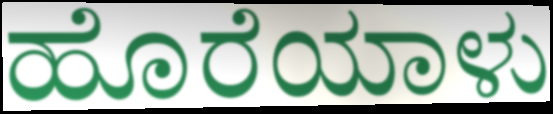
ಹೊರೆಯಾಳು